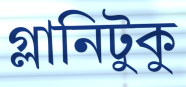
গ্লানিটুকু